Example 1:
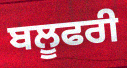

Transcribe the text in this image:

ਬਲੂਫਰੀ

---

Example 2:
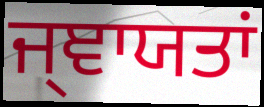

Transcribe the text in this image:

ਜ੍ਞਾਯਤਾਂ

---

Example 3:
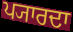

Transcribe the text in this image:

ਪ੍ਯਾਰਦਾ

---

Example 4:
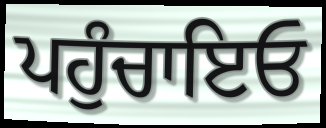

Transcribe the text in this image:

ਪਹੁੰਚਾਇਓ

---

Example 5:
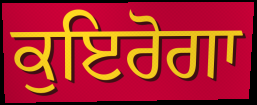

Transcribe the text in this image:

ਕੁਇਰੋਗਾ